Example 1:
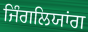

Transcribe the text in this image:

ਜਿੰਗਲਿਯਾਂਗ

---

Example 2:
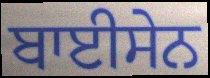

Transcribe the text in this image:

ਬਾਈਸੇਨ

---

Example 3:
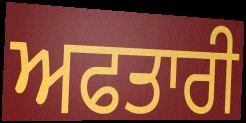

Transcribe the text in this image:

ਅਫਤਾਰੀ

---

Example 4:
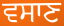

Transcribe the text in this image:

ਵਸਾਣ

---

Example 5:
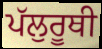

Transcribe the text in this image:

ਪੱਲੁਰੂਥੀ